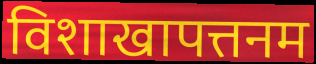
विशाखापत्तनम